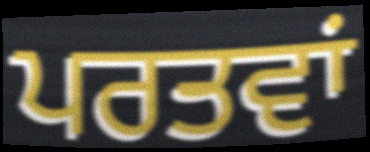
ਪਰਤਵਾਂ